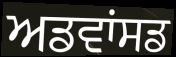
ਅਡਵਾਂਸਡ